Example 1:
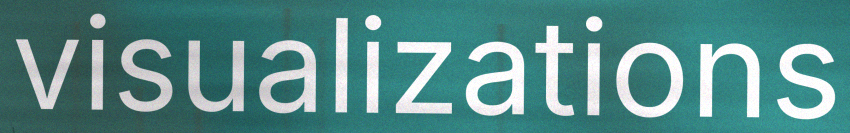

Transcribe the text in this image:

visualizations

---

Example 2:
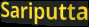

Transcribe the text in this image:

Sariputta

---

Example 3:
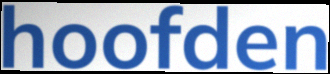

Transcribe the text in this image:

hoofden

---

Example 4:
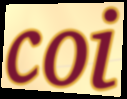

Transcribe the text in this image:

coi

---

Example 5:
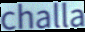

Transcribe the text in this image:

challa